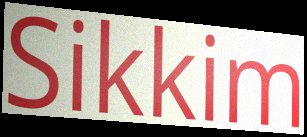
Sikkim